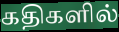
கதிகளில்